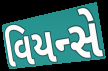
વિયન્સે